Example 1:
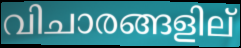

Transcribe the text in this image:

വിചാരങ്ങളില്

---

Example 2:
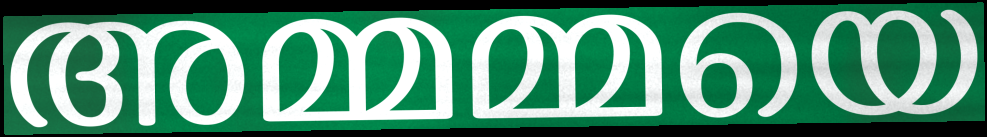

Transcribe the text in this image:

അമ്മമ്മയെ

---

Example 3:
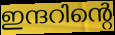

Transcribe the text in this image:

ഇന്ദറിന്റെ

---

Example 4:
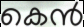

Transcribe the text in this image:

കെൻ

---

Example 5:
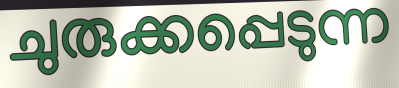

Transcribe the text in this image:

ചുരുക്കപ്പെടുന്ന